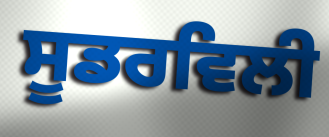
ਸੂਡਰਵਿਲੀ